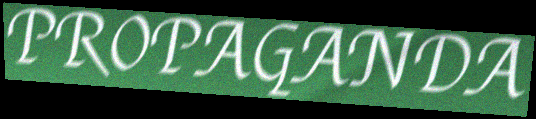
PROPAGANDA